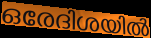
ഒരേദിശയിൽ